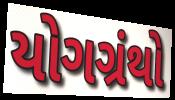
યોગગ્રંથો